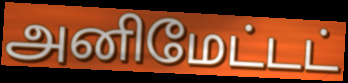
அனிமேட்டட்